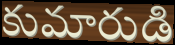
కుమారుడి